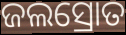
ଜଲସ୍ରୋତ